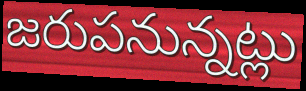
జరుపనున్నట్లు